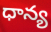
ధాన్య